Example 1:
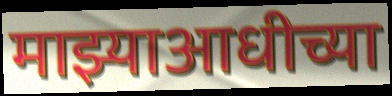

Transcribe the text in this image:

माझ्याआधीच्या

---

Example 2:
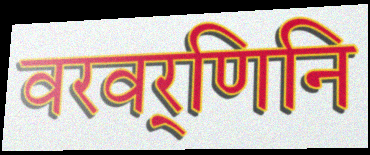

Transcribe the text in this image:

वरवर्णिनि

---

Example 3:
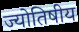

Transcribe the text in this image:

ज्योतिषीय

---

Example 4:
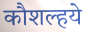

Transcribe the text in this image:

कौशल्हये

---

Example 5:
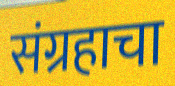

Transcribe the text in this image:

संग्रहाचा